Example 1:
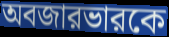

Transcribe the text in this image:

অবজারভারকে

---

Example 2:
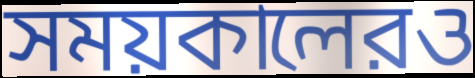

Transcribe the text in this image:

সময়কালেরও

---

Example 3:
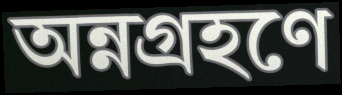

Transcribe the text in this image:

অন্নগ্রহণে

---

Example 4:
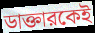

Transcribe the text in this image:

ডাক্তারকেই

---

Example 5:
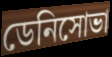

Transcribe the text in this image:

ডেনিসোভা